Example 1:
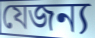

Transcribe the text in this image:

যেজন্য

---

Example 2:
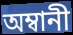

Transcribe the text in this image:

অম্বানী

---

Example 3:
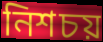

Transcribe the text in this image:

নিশচয়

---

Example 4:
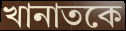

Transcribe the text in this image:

খানাতকে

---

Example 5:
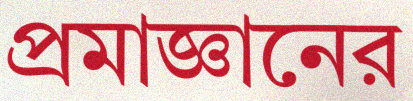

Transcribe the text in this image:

প্রমাজ্ঞানের